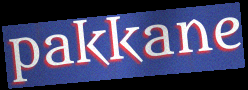
pakkane